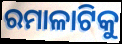
ରମାଳାଟିକୁ